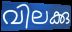
വിലക്കു